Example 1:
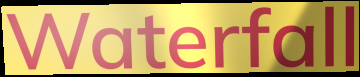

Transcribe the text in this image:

Waterfall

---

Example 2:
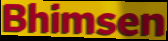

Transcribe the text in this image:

Bhimsen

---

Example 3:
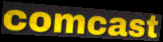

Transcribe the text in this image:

comcast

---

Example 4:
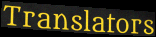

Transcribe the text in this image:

Translators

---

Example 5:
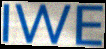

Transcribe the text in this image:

IWE